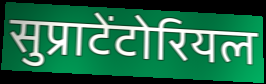
सुप्राटेंटोरियल